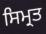
ਸਿਮ੍ਰਤ